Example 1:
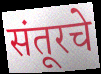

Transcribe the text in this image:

संतूरचे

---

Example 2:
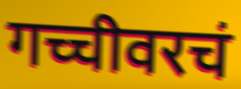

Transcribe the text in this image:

गच्चीवरचं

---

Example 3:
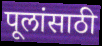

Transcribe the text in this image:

पूलांसाठी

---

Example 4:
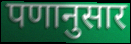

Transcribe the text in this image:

पणानुसार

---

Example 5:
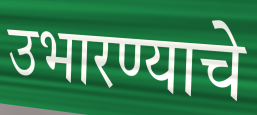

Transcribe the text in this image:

उभारण्याचे